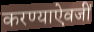
करण्याऐवजीं